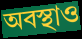
অবস্থাও